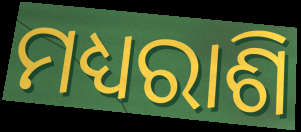
ମଧ୍ୟରାଶି